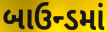
બાઉન્ડમાં